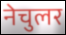
नेचुलर